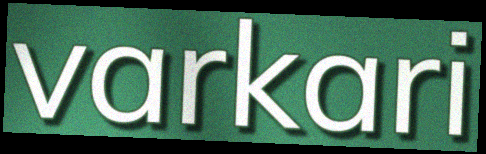
varkari